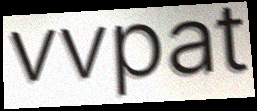
vvpat